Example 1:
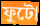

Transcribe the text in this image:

ফুটো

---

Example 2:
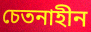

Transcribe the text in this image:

চেতনাহীন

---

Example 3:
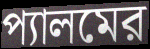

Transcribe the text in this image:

প্যালমের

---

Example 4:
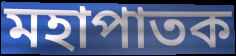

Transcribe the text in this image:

মহাপাতক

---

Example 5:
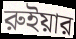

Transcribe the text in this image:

রুইয়ার